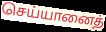
செய்யானைத்